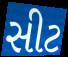
સીટ